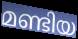
മണ്ടിയ